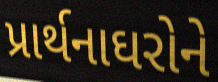
પ્રાર્થનાઘરોને